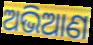
ଅଭିଆଣ